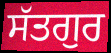
ਸੱਤਗੁਰ